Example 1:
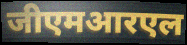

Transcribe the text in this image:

जीएमआरएल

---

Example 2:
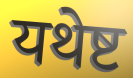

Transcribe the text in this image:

यथेष्ट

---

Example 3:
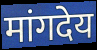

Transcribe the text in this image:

मांगदेय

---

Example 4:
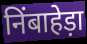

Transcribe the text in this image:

निंबाहेड़ा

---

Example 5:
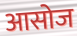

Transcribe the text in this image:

आसोज